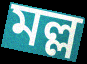
মল্ল